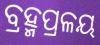
ବ୍ରହ୍ମପ୍ରଳୟ